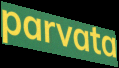
parvata